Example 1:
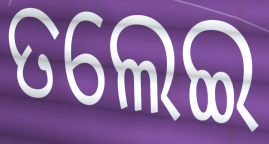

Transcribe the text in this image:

ତଲେଇ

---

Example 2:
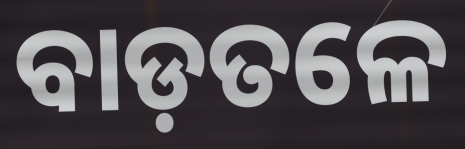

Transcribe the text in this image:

ବାଡ଼ତଳେ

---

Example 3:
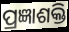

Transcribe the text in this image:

ପ୍ରଜ୍ଞାଶକ୍ତି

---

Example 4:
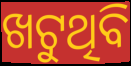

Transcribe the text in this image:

ଖଟୁଥିବି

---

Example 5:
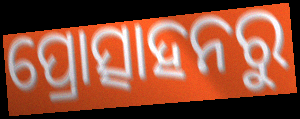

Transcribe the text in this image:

ପ୍ରୋତ୍ସାହନରୁ